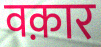
वक़ार